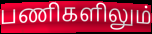
பணிகளிலும்